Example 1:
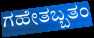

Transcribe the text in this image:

ಗಹೇತಬ್ಬತಂ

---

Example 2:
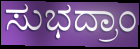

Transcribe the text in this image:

ಸುಭದ್ರಾಂ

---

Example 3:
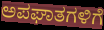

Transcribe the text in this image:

ಅಪಘಾತಗಳಿಗೆ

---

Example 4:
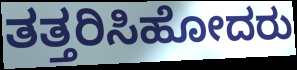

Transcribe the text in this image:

ತತ್ತರಿಸಿಹೋದರು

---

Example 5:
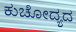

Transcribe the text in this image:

ಕುಚೋದ್ಯದ